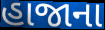
હાજાના